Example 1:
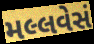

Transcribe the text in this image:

મલ્લવેસં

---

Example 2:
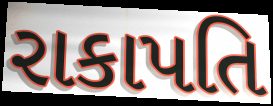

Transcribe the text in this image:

રાકાપતિ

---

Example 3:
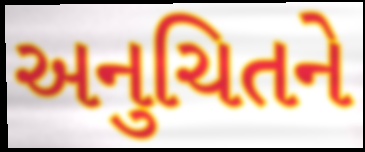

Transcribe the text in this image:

અનુચિતને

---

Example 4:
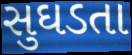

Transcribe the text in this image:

સુઘડતા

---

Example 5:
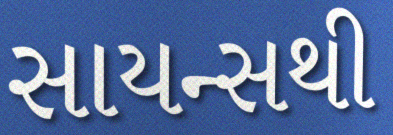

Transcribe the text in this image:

સાયન્સથી